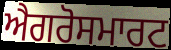
ਐਗਰੋਸਮਾਰਟ